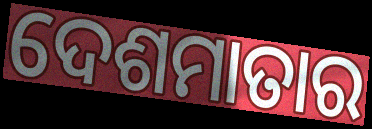
ଦେଶମାତାର